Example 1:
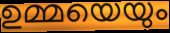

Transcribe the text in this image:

ഉമ്മയെയും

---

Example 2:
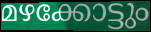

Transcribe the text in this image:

മഴക്കോട്ടും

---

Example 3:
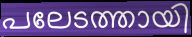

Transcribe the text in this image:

പലേടത്തായി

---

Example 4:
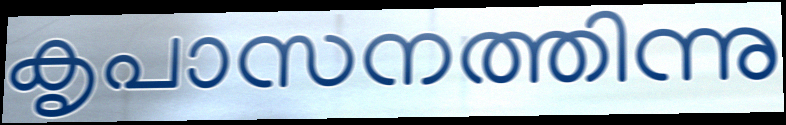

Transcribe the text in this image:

കൃപാസനത്തിന്നു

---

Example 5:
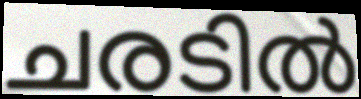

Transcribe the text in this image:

ചരടിൽ